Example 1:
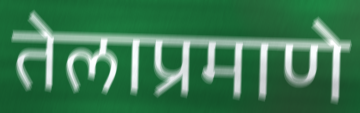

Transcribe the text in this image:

तेलाप्रमाणे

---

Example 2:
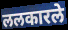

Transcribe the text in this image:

ललकारले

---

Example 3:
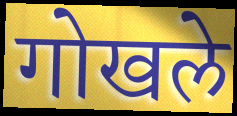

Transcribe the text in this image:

गोखले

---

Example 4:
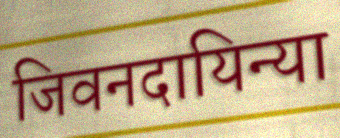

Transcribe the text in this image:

जिवनदायिन्या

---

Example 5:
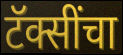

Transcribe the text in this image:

टॅक्सींचा